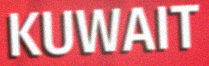
KUWAIT